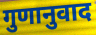
गुणानुवाद